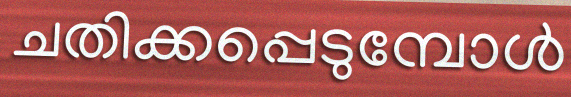
ചതിക്കപ്പെടുമ്പോൾ